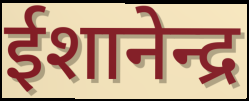
ईशानेन्द्र